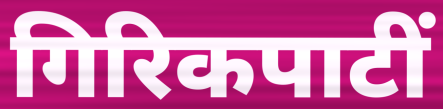
गिरिकपाटीं